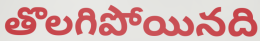
తొలగిపోయినది